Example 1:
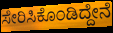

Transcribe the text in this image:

ಸೇರಿಸಿಕೊಂಡಿದ್ದೇನೆ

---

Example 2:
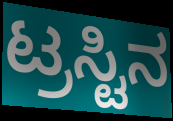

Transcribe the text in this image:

ಟ್ರಸ್ಟಿನ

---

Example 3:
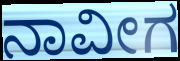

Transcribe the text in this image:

ನಾವೀಗ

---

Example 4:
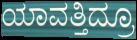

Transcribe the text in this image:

ಯಾವತ್ತಿದ್ರೂ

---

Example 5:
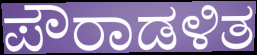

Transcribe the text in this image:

ಪೌರಾಡಳಿತ